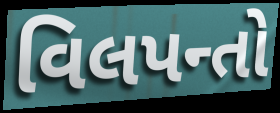
વિલપન્તો